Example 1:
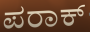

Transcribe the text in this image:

ಪರಾಕ್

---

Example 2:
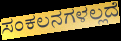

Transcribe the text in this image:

ಸಂಕಲನಗಳಲ್ಲದೆ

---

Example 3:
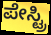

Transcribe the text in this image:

ಪೇಸ್ಟ್ರಿ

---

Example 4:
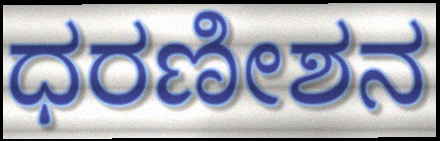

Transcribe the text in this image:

ಧರಣೀಶನ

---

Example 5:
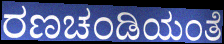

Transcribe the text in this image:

ರಣಚಂಡಿಯಂತೆ